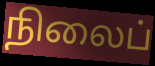
நிலைப்